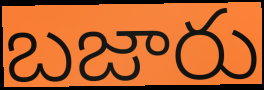
బజారు